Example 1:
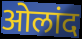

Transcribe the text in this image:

ओलांद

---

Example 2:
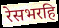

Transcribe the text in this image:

रेसभरहि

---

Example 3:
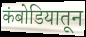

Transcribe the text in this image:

कंबोडियातून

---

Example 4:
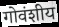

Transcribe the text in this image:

गोवंशीय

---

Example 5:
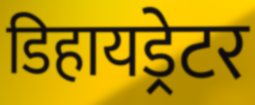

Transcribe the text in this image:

डिहायड्रेटर